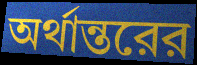
অর্থান্তরের